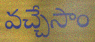
వచ్చేసాం